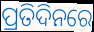
ପ୍ରତିଦିନରେ